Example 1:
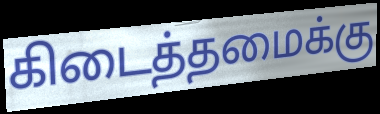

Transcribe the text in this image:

கிடைத்தமைக்கு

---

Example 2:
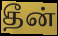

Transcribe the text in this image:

தீன்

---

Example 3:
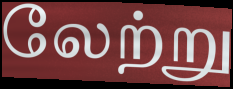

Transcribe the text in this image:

லேற்று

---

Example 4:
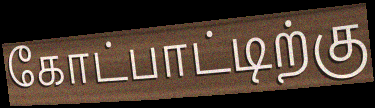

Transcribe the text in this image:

கோட்பாட்டிற்கு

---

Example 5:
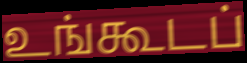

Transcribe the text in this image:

உங்கூடப்